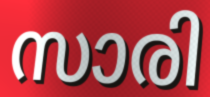
സാരി